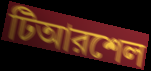
টিআরশেল